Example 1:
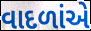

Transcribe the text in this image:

વાદળાંએ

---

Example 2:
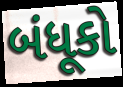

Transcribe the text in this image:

બંધૂકો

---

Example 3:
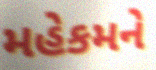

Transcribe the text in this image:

મહેકમને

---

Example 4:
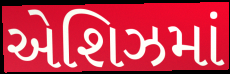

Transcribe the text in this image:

એશિઝમાં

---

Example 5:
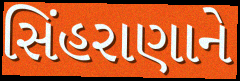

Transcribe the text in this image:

સિંહરાણાને